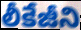
లీకేజీని